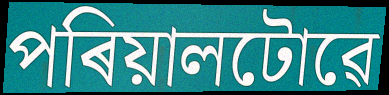
পৰিয়ালটোৱে